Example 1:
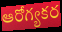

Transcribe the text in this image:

ఆరోగ్యకర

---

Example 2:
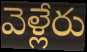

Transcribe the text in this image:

వెళ్లేరు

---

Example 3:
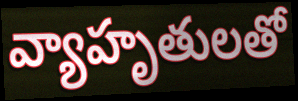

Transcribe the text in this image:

వ్యాహృతులతో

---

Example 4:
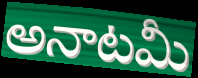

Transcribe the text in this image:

అనాటమీ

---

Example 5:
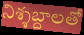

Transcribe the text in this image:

నిశ్శబ్దాలతో